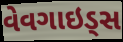
વેવગાઇડ્સ